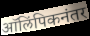
ऑलिंपिकनंतर